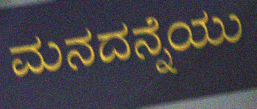
ಮನದನ್ನೆಯು